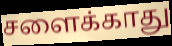
சளைக்காது